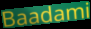
Baadami